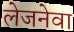
लेजनेवा